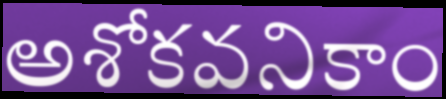
అశోకవనికాం